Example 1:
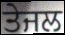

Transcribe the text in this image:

ਤੇਜਲ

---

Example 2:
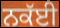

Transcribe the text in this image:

ਨਕੱਈ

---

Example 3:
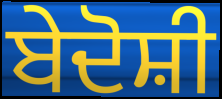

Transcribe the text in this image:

ਬੇਦੋਸ਼ੀ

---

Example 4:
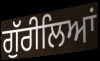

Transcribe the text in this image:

ਗੁੱਰੀਲਿਆਂ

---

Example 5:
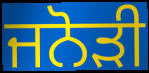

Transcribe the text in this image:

ਜਨੋੜੀ